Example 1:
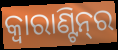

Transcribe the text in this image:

କ୍ବାରାଣ୍ଟିନ୍‌ର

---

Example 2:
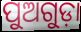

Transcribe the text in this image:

ପୁଅଗୁଡ଼ା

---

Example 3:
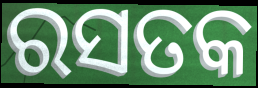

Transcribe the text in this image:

ରସତକ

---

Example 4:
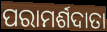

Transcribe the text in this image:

ପରାମର୍ଶଦାତା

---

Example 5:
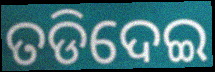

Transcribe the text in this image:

ତଡିଦେଇ